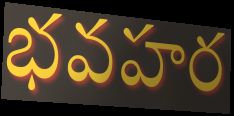
భవహర